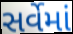
સર્વેમાં